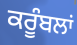
ਕਰੂੰਬਲਾਂ